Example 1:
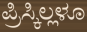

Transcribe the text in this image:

ಪ್ರಿಸ್ಕಿಲ್ಲಳೂ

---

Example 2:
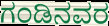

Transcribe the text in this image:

ಗಂಡಿನವರ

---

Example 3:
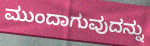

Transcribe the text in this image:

ಮುಂದಾಗುವುದನ್ನು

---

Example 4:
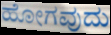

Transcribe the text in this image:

ಹೋಗವುದು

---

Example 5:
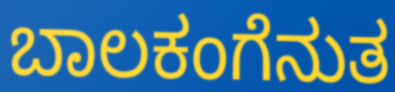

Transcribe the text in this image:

ಬಾಲಕಂಗೆನುತ